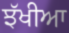
ਝੱਖੀਆ